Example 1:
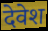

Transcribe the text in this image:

देवेश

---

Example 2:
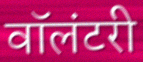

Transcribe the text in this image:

वॉलंटरी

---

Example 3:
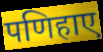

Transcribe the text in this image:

पणिहाए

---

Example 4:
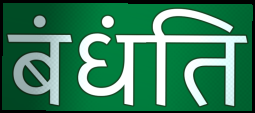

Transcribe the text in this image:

बंधंति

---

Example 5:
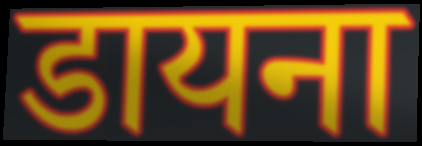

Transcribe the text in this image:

डायना